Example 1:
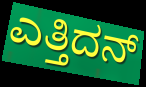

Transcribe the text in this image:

ಎತ್ತಿದನ್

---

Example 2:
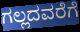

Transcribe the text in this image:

ಗಲ್ಲದವರೆಗೆ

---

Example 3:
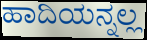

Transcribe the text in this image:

ಹಾದಿಯನ್ನಲ್ಲ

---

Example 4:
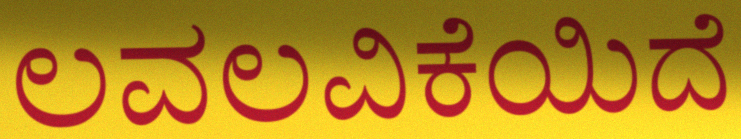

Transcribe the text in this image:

ಲವಲವಿಕೆಯಿದೆ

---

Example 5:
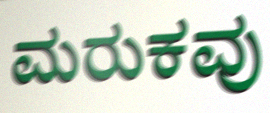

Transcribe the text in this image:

ಮರುಕವು